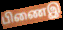
பிணைஇ